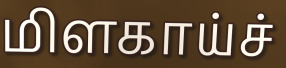
மிளகாய்ச்